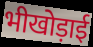
भीखोड़ाई